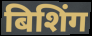
बिशिंग